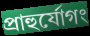
প্রাহুর্যোগং